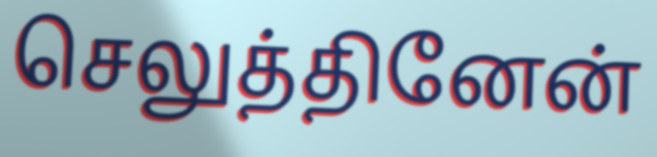
செலுத்தினேன்